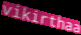
vikirthaa